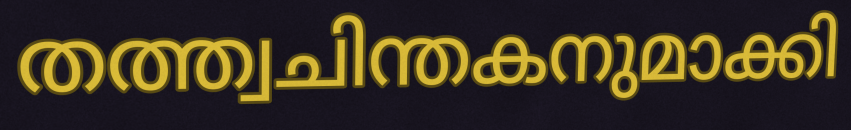
തത്ത്വചിന്തകനുമാക്കി